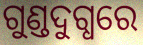
ଗୁଣ୍ଡଦୁଗ୍ଧରେ